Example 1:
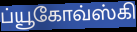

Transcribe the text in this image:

ப்யூகோவ்ஸ்கி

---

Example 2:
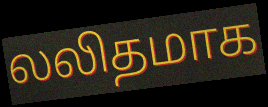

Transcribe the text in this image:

லலிதமாக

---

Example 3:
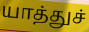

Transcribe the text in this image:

யாத்துச்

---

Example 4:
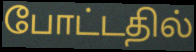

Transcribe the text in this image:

போட்டதில்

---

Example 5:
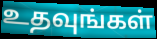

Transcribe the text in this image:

உதவுங்கள்